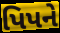
પિપને